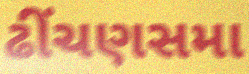
ઢીંચણસમા